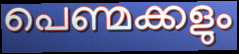
പെണ്മക്കളും